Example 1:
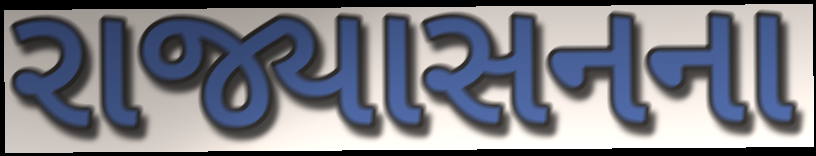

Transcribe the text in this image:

રાજ્યાસનના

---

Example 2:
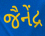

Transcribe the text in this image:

જૈનેંદ્ર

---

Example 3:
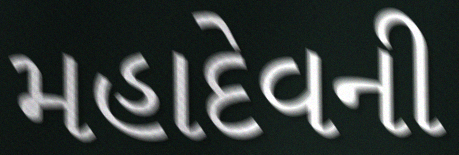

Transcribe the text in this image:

મહાદેવની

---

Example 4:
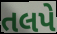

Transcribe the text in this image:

તલપે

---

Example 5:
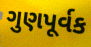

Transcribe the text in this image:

ગુણપૂર્વક